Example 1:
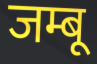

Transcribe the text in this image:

जम्बू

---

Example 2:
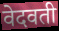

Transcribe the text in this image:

वेदवती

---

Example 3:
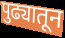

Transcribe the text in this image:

पुढ्यातून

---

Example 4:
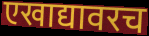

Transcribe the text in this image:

एखाद्यावरच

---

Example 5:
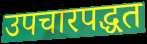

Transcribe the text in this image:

उपचारपद्धत